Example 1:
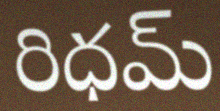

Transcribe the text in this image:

రిధమ్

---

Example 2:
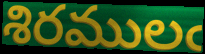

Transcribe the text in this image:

శిరములఁ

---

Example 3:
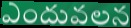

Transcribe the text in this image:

ఎందువలన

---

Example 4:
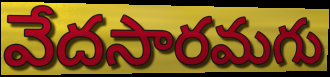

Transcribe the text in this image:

వేదసారమగు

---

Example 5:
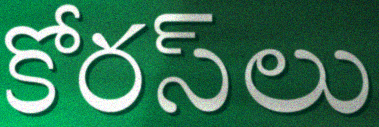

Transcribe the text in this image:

కోరస్‌లు